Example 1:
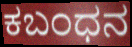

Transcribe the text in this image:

ಕಬಂಧನ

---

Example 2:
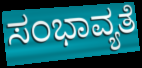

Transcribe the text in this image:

ಸಂಭಾವ್ಯತೆ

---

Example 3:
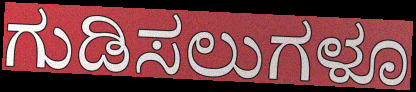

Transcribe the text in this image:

ಗುಡಿಸಲುಗಳೂ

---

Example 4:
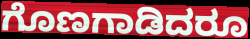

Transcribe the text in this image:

ಗೊಣಗಾಡಿದರೂ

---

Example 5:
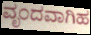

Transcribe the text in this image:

ವೃಂದವಾಗಿಹ